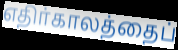
எதிர்காலத்தைப்